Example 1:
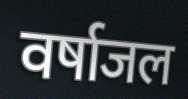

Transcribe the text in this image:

वर्षाजल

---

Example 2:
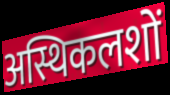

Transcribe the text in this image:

अस्थिकलशों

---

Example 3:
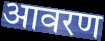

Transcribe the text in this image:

आवरण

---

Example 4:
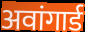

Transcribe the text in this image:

अवांगार्ड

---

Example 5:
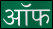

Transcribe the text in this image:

ऑफ